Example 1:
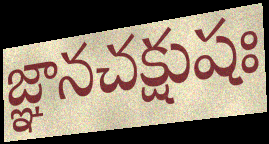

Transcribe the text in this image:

జ్ఞానచక్షుషః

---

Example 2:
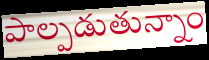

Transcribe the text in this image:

పాల్పడుతున్నాం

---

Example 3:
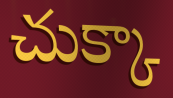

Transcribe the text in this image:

చుక్కా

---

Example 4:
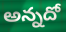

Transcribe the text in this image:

అన్నదో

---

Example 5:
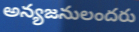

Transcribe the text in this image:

అన్యజనులందరు